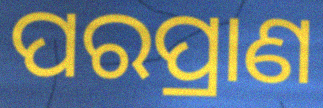
ପରପ୍ରାଣ